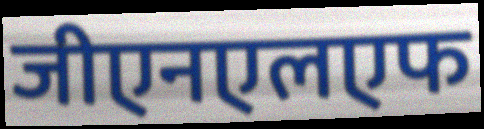
जीएनएलएफ